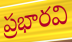
ప్రభారవి